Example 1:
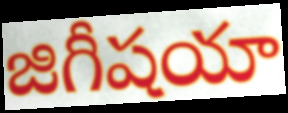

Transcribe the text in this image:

జిగీషయా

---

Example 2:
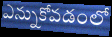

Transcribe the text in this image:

ఎన్నుకోవడంలో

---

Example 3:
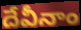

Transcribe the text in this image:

దేవీనాం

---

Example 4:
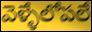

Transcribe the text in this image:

వెళ్ళేలోపలే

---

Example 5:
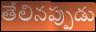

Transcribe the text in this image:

తేలినప్పుడు